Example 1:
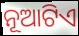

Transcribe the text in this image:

ନୂଆଟିଏ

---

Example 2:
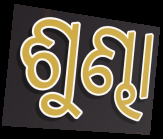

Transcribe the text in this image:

ଶୁଣ୍ଢା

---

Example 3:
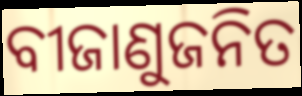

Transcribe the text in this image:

ବୀଜାଣୁଜନିତ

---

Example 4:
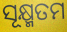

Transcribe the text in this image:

ସୂକ୍ଷ୍ମତମ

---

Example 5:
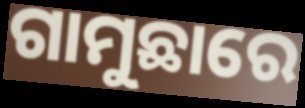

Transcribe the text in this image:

ଗାମୁଛାରେ